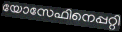
യോസേഫിനെപ്പറ്റി